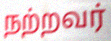
நற்றவர்